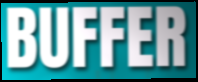
BUFFER